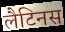
लैटिनस